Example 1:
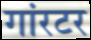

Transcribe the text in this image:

गांरटर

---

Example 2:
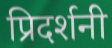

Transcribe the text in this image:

प्रिदर्शनी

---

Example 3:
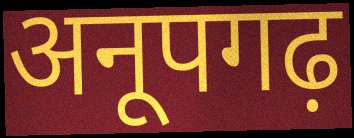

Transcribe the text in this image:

अनूपगढ़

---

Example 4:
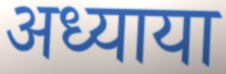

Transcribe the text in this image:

अध्याया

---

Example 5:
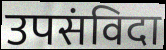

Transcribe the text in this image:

उपसंविदा